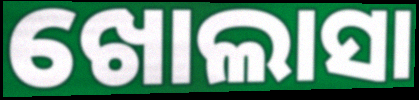
ଖୋଲାସା